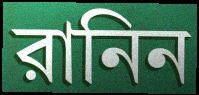
রানিন